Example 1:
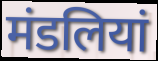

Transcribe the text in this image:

मंडलियां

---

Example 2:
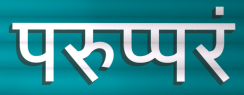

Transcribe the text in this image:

परुप्परं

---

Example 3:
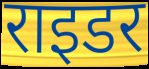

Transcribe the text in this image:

राइडर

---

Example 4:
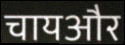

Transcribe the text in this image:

चायऔर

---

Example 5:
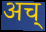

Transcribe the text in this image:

अच्